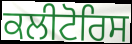
ਕਲੀਟੋਰਿਸ